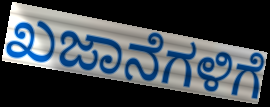
ಖಜಾನೆಗಳಿಗೆ